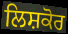
ਲਿਸ਼ਕੋਰ